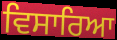
ਵਿਸਾਰਿਆ